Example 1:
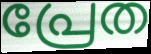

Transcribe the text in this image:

പ്രേത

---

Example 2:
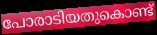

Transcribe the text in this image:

പോരാടിയതുകൊണ്ട്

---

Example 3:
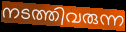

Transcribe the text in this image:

നടത്തിവരുന്ന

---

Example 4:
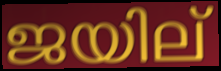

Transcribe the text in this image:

ജയില്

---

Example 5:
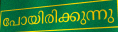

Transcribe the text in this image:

പോയിരിക്കുന്നു